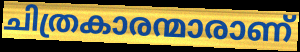
ചിത്രകാരന്മാരാണ്